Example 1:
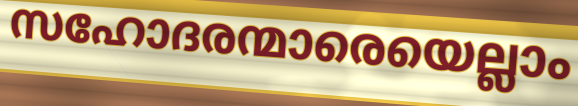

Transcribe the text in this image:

സഹോദരന്മാരെയെല്ലാം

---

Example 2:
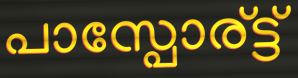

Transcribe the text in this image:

പാസ്പോര്ട്ട്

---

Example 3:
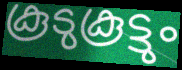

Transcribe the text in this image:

കൂടുകൂട്ടും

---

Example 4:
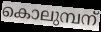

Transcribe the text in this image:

കൊലുമ്പന്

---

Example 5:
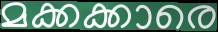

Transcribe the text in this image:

മക്കക്കാരെ